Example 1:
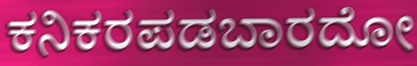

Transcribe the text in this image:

ಕನಿಕರಪಡಬಾರದೋ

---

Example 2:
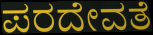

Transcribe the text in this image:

ಪರದೇವತೆ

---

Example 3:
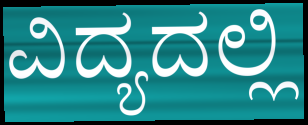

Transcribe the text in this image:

ವಿದ್ಯದಲ್ಲಿ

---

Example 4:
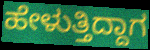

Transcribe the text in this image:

ಹೇಳುತ್ತಿದ್ದಾಗ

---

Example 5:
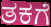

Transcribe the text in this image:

ತಕಗೆ